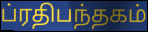
ப்ரதிபந்தகம்